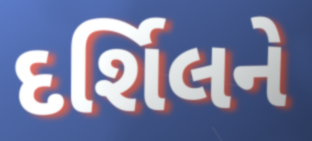
દર્શિલને